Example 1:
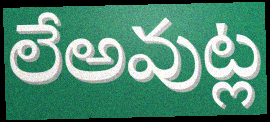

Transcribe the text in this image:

లేఅవుట్ల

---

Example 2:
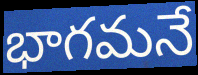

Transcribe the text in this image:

భాగమనే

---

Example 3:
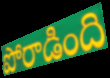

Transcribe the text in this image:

పోరాడింది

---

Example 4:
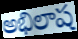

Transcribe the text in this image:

అభిలాష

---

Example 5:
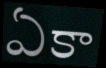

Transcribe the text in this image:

ఏకా